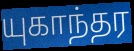
யுகாந்தர